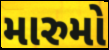
મારુમો